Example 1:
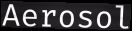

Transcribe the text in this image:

Aerosol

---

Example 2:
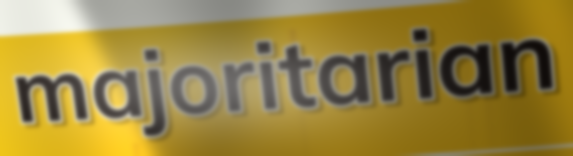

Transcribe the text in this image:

majoritarian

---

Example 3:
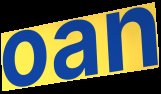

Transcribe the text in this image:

oan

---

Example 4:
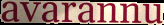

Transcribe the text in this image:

avarannu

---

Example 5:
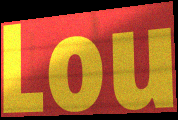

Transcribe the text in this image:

Lou